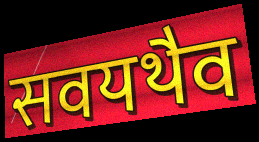
सवयथैव